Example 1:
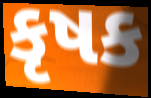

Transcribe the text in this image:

કૃષક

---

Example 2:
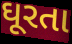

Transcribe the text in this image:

ઘૂરતા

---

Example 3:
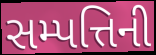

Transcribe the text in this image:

સમ્પત્તિની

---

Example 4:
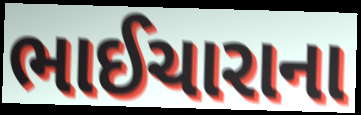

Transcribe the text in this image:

ભાઈચારાના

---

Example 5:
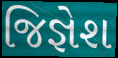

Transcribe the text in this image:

જિજ્ઞેશ